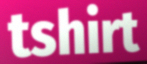
tshirt